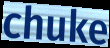
chuke